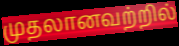
முதலானவற்றில்